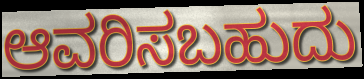
ಆವರಿಸಬಹುದು